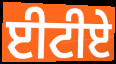
ਈਟੀਏ